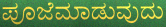
ಪೂಜೆಮಾಡುವುದು